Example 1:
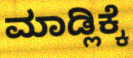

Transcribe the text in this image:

ಮಾಡ್ಲಿಕ್ಕೆ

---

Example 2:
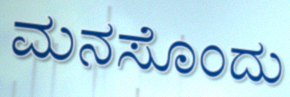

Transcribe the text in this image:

ಮನಸೊಂದು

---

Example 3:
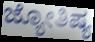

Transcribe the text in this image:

ಜ್ಯೋತಿಷ್ಯ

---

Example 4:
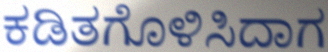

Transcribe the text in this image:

ಕಡಿತಗೊಳಿಸಿದಾಗ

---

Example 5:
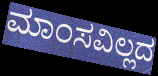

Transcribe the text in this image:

ಮಾಂಸವಿಲ್ಲದ